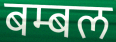
बम्बल